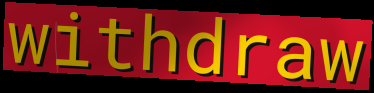
withdraw